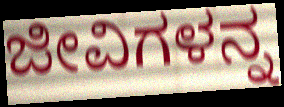
ಜೀವಿಗಳನ್ನ